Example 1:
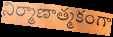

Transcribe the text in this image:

నిర్మాణాత్మకంగా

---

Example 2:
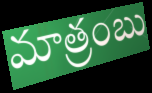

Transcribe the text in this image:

మాత్రంబు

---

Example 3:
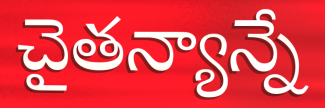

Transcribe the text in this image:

చైతన్యాన్నే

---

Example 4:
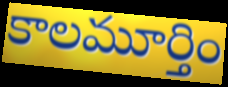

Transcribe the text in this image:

కాలమూర్తిం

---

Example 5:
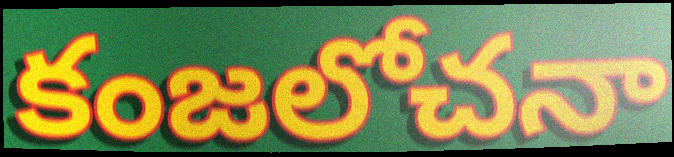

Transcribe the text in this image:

కంజలోచనా